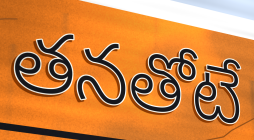
తనతోటే